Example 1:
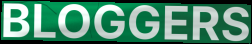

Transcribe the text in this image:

BLOGGERS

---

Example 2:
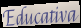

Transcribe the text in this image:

Educativa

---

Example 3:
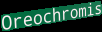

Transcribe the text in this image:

Oreochromis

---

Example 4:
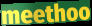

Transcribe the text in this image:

meethoo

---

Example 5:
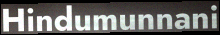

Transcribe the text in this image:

Hindumunnani